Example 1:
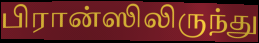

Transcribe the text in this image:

பிரான்ஸிலிருந்து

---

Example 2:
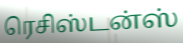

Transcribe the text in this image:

ரெசிஸ்டன்ஸ்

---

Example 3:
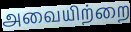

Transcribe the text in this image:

அவையிற்றை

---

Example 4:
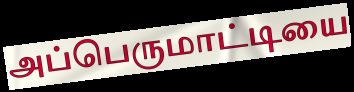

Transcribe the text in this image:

அப்பெருமாட்டியை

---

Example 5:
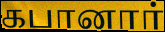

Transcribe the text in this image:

கபானார்